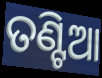
ତଣ୍ଟିଆ